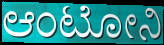
ಆಂಟೋನಿ